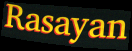
Rasayan